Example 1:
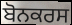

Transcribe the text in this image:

ਬੋਨਕਰਸ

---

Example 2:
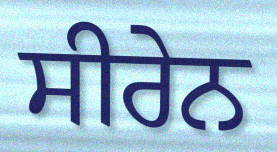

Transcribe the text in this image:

ਸੀਰੇਨ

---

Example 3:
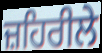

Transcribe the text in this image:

ਜ਼ਹਿਰੀਲੇ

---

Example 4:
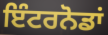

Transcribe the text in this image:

ਇੰਟਰਨੋਡਾਂ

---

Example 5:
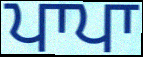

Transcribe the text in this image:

ਪਾਪਾ